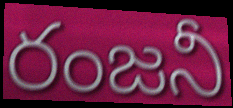
రంజనీ